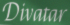
Divatar